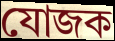
যোজক